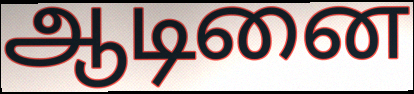
ஆடினை